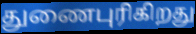
துணைபுரிகிறது